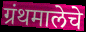
ग्रंथमालेचे